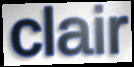
clair